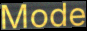
Mode